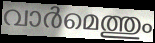
വാർമെത്തും